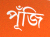
পূঁজি